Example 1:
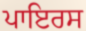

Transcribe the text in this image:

ਪਾਇਰਸ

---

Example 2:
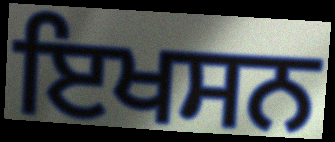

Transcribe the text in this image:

ਇਖਸਨ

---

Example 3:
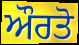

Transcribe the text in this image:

ਔਰਤੋ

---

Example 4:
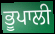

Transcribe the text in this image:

ਭੂਪਾਲੀ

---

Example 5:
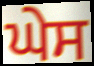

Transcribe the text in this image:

ਘੇਸ